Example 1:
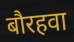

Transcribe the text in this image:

बौरहवा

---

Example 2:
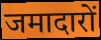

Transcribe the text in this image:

जमादारों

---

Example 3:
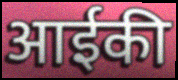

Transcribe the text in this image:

आईकी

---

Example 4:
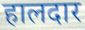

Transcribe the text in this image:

हालदार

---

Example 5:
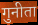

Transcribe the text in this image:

गुनीता